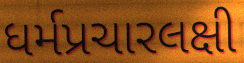
ધર્મપ્રચારલક્ષી